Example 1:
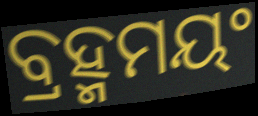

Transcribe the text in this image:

ବ୍ରହ୍ମମୟଂ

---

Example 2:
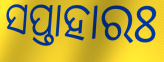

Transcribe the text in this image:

ସପ୍ତାହାରଃ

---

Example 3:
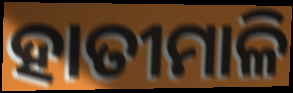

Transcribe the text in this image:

ହାତୀମାଳି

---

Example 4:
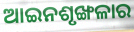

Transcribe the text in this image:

ଆଇନଶୃଙ୍ଖଳାର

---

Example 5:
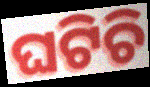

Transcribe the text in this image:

ଘଟିଚି